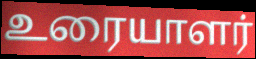
உரையாளர்